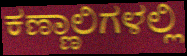
ಕಣ್ಣಾಲಿಗಳಲ್ಲಿ